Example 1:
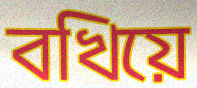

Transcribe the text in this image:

বখিয়ে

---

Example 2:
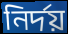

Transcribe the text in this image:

নির্দয়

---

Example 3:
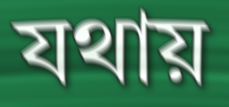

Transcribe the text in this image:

যথায়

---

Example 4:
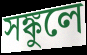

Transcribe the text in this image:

সঙ্কুলে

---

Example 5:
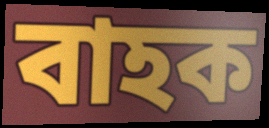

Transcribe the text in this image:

বাহক